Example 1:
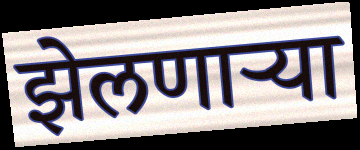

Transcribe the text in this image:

झेलणाऱ्या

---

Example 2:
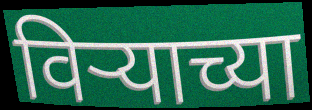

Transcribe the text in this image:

विर्‍याच्या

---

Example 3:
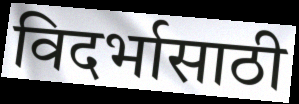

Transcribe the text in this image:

विदर्भासाठी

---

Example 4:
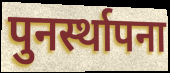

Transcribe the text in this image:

पुनर्स्थापना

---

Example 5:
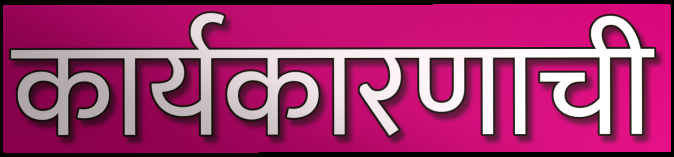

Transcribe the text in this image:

कार्यकारणाची